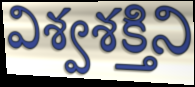
విశ్వశక్తిని